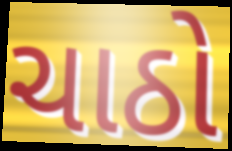
ચાઠો